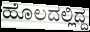
ಹೊಲದಲ್ಲಿದ್ದ